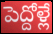
పెద్దోళ్లే